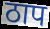
ठाप